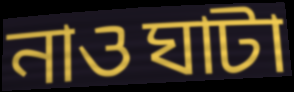
নাওঘাটা